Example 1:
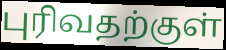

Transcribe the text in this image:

புரிவதற்குள்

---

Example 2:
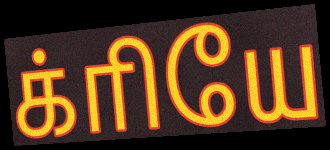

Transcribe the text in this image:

க்ரியே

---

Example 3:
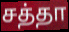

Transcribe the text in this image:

சத்தா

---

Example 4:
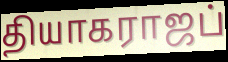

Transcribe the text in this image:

தியாகராஜப்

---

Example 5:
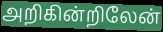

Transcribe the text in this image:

அறிகின்றிலேன்